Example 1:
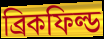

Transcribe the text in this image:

ব্রিকফিল্ড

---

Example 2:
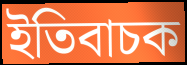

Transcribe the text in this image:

ইতিবাচক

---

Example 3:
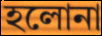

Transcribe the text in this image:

হলোনা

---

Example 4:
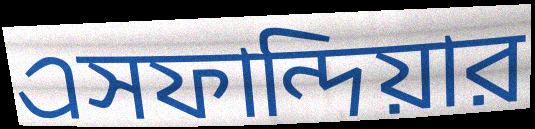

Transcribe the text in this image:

এসফান্দিয়ার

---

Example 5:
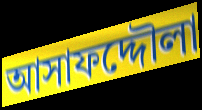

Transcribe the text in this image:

আসাফদ্দৌলা